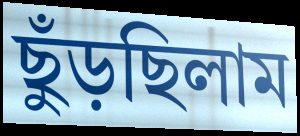
ছুঁড়ছিলাম